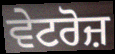
ਵੇਟਰੋਜ਼